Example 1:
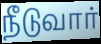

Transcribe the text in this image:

நீடுவார்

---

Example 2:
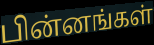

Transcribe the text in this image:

பின்னங்கள்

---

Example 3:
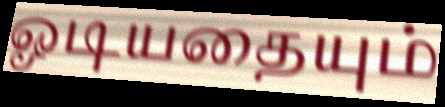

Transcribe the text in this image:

ஓடியதையும்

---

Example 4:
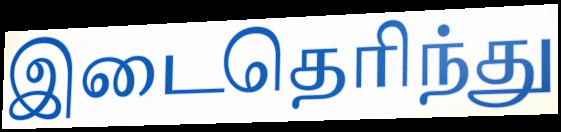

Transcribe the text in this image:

இடைதெரிந்து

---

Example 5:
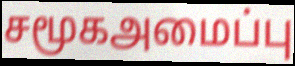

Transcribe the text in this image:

சமூகஅமைப்பு